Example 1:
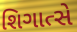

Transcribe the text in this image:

શિગાત્સે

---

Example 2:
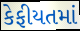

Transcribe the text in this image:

કેફીયતમાં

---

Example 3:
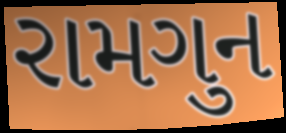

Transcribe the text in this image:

રામગુન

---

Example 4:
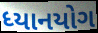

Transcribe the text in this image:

ધ્યાનયોગ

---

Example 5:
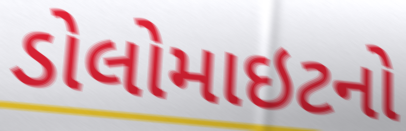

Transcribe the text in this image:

ડોલોમાઇટનો